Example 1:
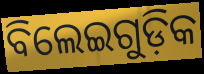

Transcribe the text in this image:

ବିଲେଇଗୁଡ଼ିକ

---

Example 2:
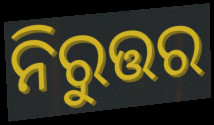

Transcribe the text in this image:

ନିରୁତ୍ତର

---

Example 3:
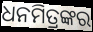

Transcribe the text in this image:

ଧନମିତ୍ରଙ୍କର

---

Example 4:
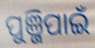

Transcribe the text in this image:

ପୁଞ୍ଜିପାଇଁ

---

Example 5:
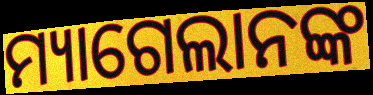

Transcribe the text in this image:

ମ୍ୟାଗେଲାନଙ୍କ